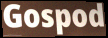
Gospod